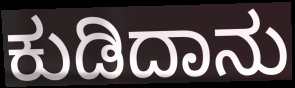
ಕುಡಿದಾನು